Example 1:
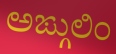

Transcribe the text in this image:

ಅಙ್ಗುಲಿಂ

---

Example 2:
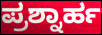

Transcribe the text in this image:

ಪ್ರಶ್ನಾರ್ಹ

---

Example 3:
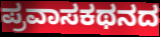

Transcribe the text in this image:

ಪ್ರವಾಸಕಥನದ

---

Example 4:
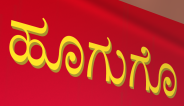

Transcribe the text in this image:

ಹೂಗುಗೊ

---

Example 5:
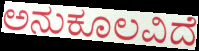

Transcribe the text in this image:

ಅನುಕೂಲವಿದೆ